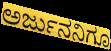
ಅರ್ಜುನನಿಗೂ